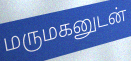
மருமகனுடன்